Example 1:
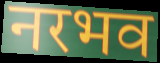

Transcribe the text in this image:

नरभव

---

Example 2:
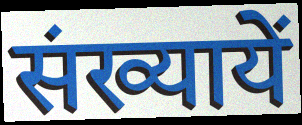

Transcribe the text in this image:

संख्यायें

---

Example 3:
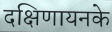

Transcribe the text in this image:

दक्षिणायनके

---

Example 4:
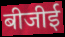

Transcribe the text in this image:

बीजीई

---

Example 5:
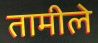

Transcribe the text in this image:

तामीले